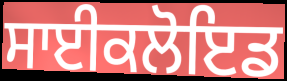
ਸਾਈਕਲੋਇਡ